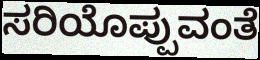
ಸರಿಯೊಪ್ಪುವಂತೆ